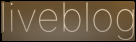
liveblog